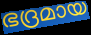
ഭദ്രമായ